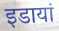
इडायां